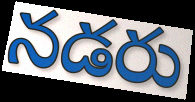
నడరు